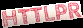
HTTLPR